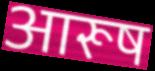
आरूष